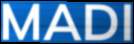
MADI